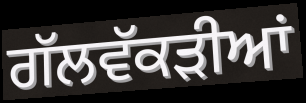
ਗੱਲਵੱਕੜੀਆਂ